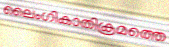
ലൈംഗികാതിക്രമത്തെ